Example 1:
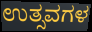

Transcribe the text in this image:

ಉತ್ಸವಗಳ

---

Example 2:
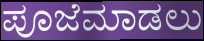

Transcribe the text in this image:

ಪೂಜೆಮಾಡಲು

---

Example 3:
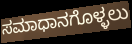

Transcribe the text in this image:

ಸಮಾಧಾನಗೊಳ್ಳಲು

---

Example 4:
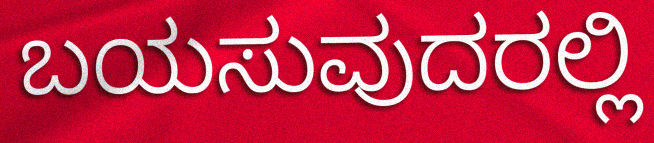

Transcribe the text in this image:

ಬಯಸುವುದರಲ್ಲಿ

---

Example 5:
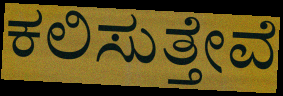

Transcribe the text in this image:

ಕಲಿಸುತ್ತೇವೆ